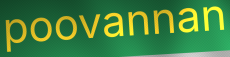
poovannan